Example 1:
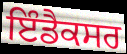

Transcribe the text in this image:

ਇੰਡੈਕਸਰ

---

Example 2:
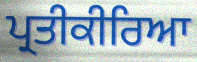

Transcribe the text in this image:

ਪ੍ਰਤੀਕੀਰਿਆ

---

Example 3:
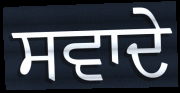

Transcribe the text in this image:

ਸਵਾਦੇ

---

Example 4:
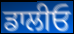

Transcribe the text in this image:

ਡਾਲੀਓ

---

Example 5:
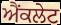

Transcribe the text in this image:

ਐਂਕਲੇਟ